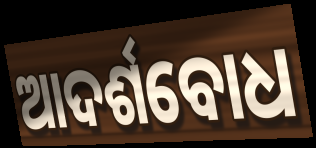
ଆଦର୍ଶବୋଧ